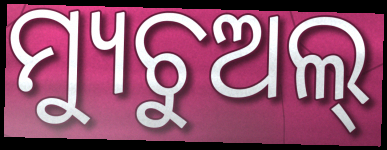
ମ୍ୟୁଚୁଅଲ୍